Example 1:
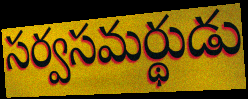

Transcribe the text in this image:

సర్వసమర్థుడు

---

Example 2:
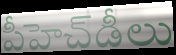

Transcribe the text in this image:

పీహెచ్‌డీలు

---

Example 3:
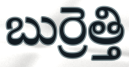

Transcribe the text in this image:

బుర్రెత్తి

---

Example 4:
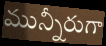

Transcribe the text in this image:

మున్నీరుగా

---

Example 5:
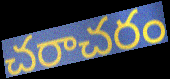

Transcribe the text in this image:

చరాచరం